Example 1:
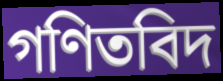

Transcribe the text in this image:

গণিতবিদ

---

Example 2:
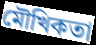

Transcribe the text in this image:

মৌখিকতা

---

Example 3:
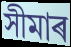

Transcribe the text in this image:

সীমাৰ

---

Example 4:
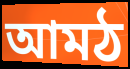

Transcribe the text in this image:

আমঠ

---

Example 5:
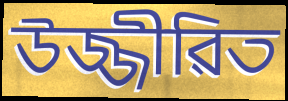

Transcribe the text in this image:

উজ্জীৱিত